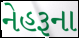
નેહરૂના